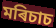
মৰিচাচ